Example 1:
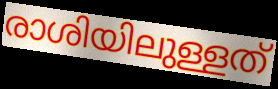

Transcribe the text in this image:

രാശിയിലുള്ളത്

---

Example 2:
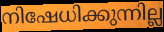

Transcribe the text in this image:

നിഷേധിക്കുന്നില്ല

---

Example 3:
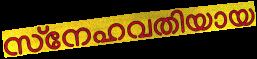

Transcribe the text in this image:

സ്‌നേഹവതിയായ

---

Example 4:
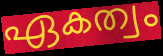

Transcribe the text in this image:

ഏകത്വം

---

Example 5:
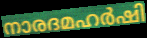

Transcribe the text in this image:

നാരദമഹർഷി